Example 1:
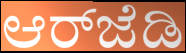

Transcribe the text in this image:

ಆರ್‌ಜೆಡಿ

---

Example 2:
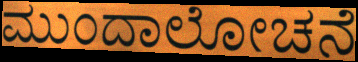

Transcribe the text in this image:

ಮುಂದಾಲೋಚನೆ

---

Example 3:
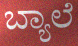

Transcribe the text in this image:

ಬ್ಯಾಲೆ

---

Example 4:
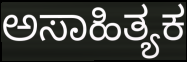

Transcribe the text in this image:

ಅಸಾಹಿತ್ಯಕ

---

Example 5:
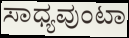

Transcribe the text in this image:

ಸಾಧ್ಯವುಂಟಾ